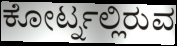
ಕೋರ್ಟ್ನಲ್ಲಿರುವ